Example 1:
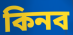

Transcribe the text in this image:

কিনব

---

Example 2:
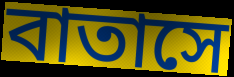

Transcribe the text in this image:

বাতাসে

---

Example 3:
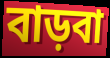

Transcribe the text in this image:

বাড়বা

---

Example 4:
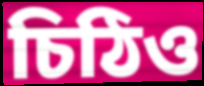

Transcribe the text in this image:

চিঠিও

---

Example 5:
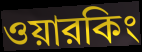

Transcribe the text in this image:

ওয়ারকিং